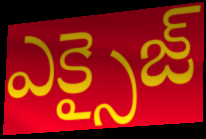
ఎక్సైజ్